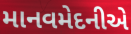
માનવમેદનીએ